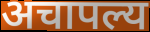
अचापल्य